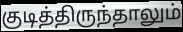
குடித்திருந்தாலும்